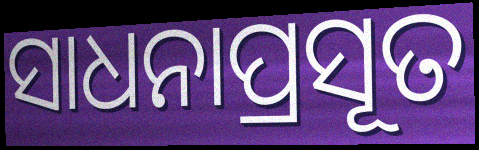
ସାଧନାପ୍ରସୂତ